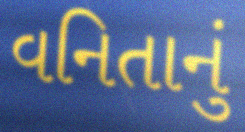
વનિતાનું